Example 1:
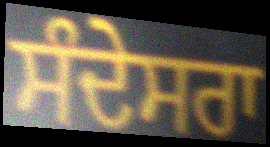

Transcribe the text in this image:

ਸੰਦੇਸਰਾ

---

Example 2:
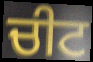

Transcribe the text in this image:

ਚੀਟ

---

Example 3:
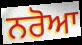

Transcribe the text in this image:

ਨਰੋਆ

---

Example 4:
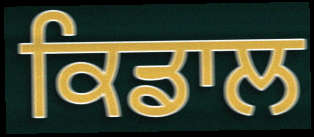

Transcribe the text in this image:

ਕਿਡਾਲ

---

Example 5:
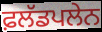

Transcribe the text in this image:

ਫ਼ਲੱਡਪਲੇਨ